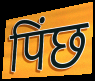
पिंछ